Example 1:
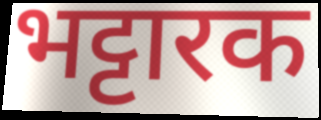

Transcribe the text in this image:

भट्टारक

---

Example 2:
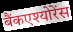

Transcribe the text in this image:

बैंकएश्योरेंस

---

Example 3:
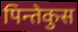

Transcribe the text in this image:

पिन्तेकुस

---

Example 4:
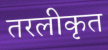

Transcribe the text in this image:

तरलीकृत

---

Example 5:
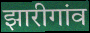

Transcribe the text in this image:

झारीगांव